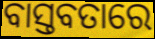
ବାସ୍ତବତାରେ